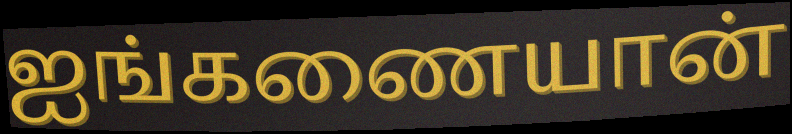
ஐங்கணையான்